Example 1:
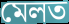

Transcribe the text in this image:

মেলত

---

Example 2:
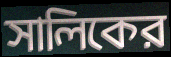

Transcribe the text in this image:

সালিকের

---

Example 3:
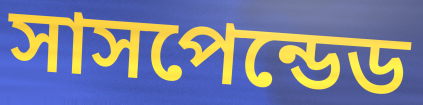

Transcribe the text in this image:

সাসপেন্ডেড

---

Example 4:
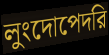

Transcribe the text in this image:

লুংদোপেদরি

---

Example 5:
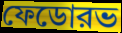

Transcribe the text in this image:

ফেডোরভ